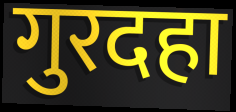
गुरदहा